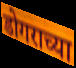
डोगराच्या